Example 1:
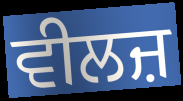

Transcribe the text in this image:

ਵੀਲਜ਼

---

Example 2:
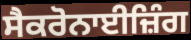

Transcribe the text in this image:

ਸੈਕਰੋਨਾਈਜ਼ਿੰਗ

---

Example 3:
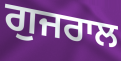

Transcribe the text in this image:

ਗੁਜਰਾਲ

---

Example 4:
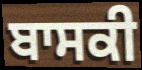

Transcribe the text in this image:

ਬਾਸਕੀ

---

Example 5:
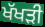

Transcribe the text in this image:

ਖੱਖੜੀ